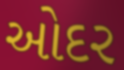
ઓદર